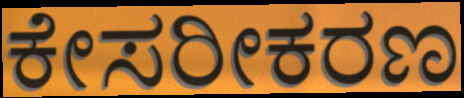
ಕೇಸರೀಕರಣ